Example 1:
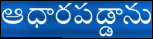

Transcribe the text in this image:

ఆధారపడ్డాను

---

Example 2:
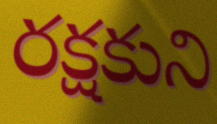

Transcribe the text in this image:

రక్షకుని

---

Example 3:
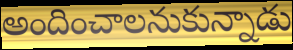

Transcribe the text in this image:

అందించాలనుకున్నాడు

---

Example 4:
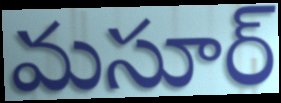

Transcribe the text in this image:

మసూర్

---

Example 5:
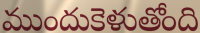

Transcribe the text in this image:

ముందుకెళుతోంది